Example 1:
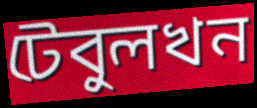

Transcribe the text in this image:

টেবুলখন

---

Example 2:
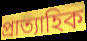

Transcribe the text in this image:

প্ৰাত্যাহিক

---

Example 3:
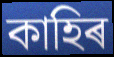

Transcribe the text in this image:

কাহিৰ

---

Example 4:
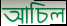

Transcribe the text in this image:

আচিল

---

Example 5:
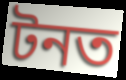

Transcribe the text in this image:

টনত